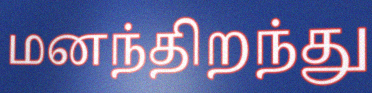
மனந்திறந்து